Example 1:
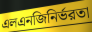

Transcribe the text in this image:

এলএনজিনির্ভরতা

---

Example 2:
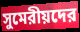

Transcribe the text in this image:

সুমেরীয়দের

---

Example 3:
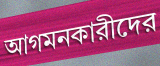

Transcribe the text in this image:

আগমনকারীদের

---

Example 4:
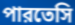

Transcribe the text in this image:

পারতেসি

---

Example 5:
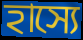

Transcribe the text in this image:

হাস্যে